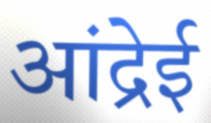
आंद्रेई